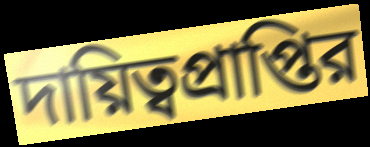
দায়িত্বপ্রাপ্তির